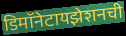
डिमॉनेटायझेशनची